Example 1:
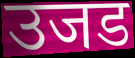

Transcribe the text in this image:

उजड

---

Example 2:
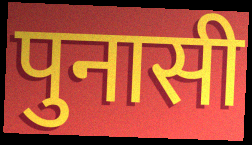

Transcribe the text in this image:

पुनासी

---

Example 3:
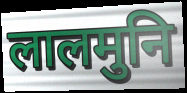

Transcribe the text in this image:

लालमुनि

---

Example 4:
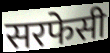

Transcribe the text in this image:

सरफेसी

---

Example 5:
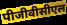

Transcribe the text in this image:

पीजीवीसीएल